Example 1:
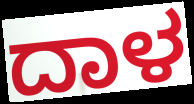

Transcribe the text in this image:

ದಾಳ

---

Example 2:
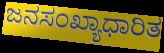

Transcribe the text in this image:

ಜನಸಂಖ್ಯಾಧಾರಿತ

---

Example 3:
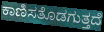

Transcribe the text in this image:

ಕಾಣಿಸತೊಡಗುತ್ತದೆ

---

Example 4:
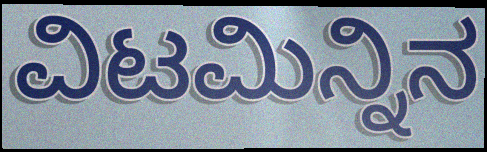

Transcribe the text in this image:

ವಿಟಮಿನ್ನಿನ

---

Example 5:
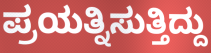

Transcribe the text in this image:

ಪ್ರಯತ್ನಿಸುತ್ತಿದ್ದು